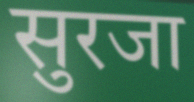
सुरजा